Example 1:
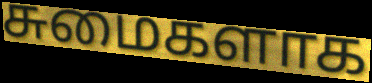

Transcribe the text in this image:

சுமைகளாக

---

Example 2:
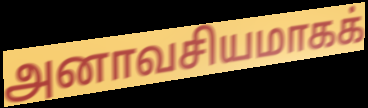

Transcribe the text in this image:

அனாவசியமாகக்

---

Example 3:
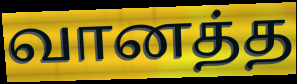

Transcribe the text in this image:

வானத்த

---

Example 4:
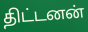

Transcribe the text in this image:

திட்டனன்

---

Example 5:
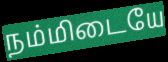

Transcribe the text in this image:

நம்மிடையே